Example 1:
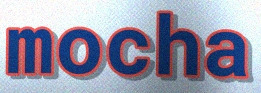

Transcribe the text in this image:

mocha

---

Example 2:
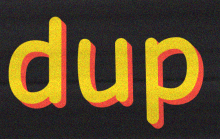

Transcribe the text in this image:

dup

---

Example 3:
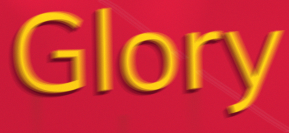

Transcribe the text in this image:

Glory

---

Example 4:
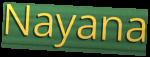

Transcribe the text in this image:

Nayana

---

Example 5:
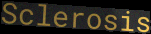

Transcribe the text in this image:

Sclerosis